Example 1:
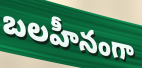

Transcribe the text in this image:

బలహీనంగా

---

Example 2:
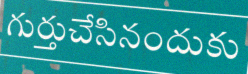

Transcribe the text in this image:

గుర్తుచేసినందుకు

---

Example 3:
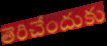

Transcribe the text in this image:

తెరిచేందుకు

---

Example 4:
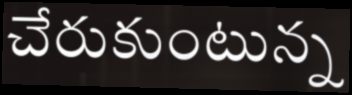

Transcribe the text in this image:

చేరుకుంటున్న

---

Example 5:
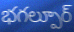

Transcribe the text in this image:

భగల్పూర్